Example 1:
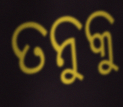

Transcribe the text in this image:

ତନୁକୁ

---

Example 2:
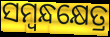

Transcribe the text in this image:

ସମ୍ବନ୍ଧକ୍ଷେତ୍ର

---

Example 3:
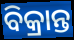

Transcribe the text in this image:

ବିକ୍ରାନ୍ତ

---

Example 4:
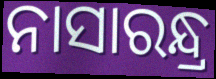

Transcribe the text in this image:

ନାସାରନ୍ଧ୍ର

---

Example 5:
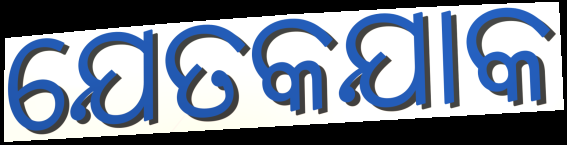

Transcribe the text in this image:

ଯେତକଯାକ